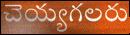
చెయ్యగలరు